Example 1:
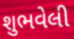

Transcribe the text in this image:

શુભવેલી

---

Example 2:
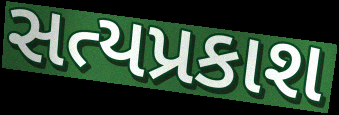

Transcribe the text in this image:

સત્યપ્રકાશ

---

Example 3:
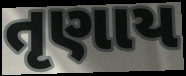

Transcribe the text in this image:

તૃણાય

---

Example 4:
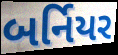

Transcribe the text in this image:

બર્નિયર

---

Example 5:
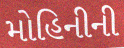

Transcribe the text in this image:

મોહિનીની